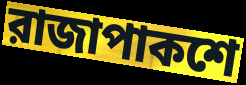
রাজাপাকশে